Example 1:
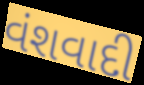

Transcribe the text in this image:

વંશવાદી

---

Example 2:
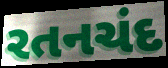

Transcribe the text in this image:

રતનચંદ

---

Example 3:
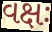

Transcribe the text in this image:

વક્ષઃ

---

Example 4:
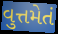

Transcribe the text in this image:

વુત્તમેતં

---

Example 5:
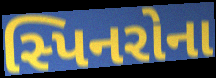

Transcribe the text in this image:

સ્પિનરોના